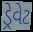
ડ્રેવેટ